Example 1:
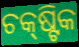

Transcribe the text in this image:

ଚକ୍‌ଷ୍ଟିକ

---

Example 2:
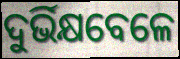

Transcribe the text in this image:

ଦୁର୍ଭିକ୍ଷବେଳେ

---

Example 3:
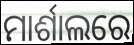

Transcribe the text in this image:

ମାର୍ଶାଲରେ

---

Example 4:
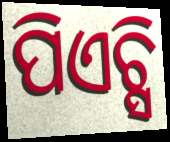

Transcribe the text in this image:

ପିଏଚ୍ସି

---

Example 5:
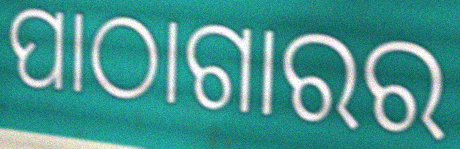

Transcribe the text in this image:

ପାଠାଗାରର